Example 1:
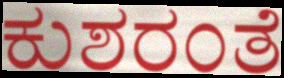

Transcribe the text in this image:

ಕುಶರಂತೆ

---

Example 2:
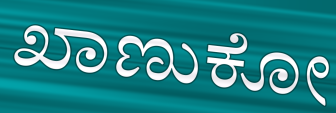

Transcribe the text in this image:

ಖಾಣುಕೋ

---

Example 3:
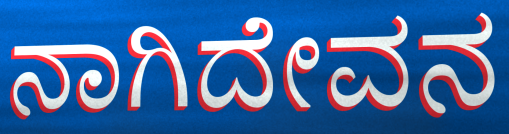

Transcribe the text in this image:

ನಾಗಿದೇವನ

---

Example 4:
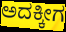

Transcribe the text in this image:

ಅದಕ್ಕೀಗ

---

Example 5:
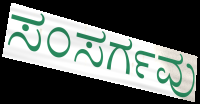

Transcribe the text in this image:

ಸಂಸರ್ಗವು